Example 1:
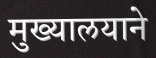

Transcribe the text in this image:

मुख्यालयाने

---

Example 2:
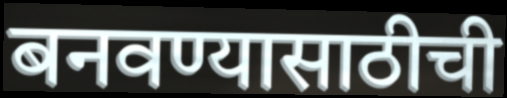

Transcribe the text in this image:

बनवण्यासाठीची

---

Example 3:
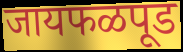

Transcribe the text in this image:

जायफळपूड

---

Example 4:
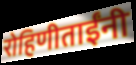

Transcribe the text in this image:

रोहिणीताईंनी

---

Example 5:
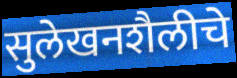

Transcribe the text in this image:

सुलेखनशैलीचे